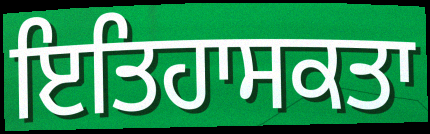
ਇਤਿਹਾਸਕਤਾ